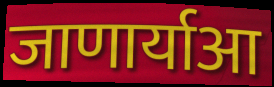
जाणार्याआ